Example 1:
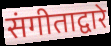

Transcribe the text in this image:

संगीताद्वारे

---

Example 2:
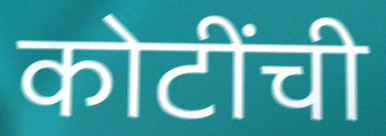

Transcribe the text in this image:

कोटींची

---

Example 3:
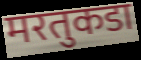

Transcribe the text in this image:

मरतुकडा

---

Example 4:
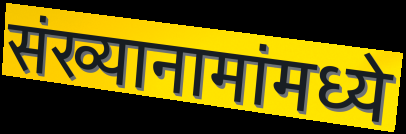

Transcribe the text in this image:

संख्यानामांमध्ये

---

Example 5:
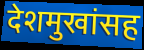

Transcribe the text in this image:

देशमुखांसह